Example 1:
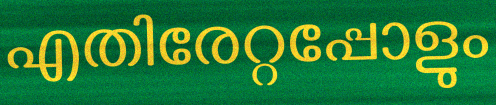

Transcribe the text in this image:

എതിരേറ്റപ്പോളും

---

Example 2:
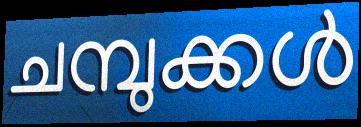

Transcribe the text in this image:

ചമ്പുക്കൾ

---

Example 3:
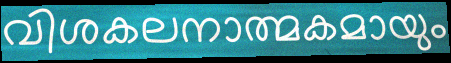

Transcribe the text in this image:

വിശകലനാത്മകമായും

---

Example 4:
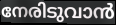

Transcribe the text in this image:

നേരിടുവാൻ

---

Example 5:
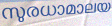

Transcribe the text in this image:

സുരധാമാലയ